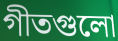
গীতগুলো